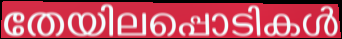
തേയിലപ്പൊടികൾ